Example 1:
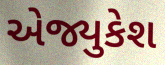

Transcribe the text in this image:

એજ્યુકેશ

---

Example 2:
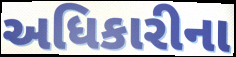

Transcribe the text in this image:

અધિકારીના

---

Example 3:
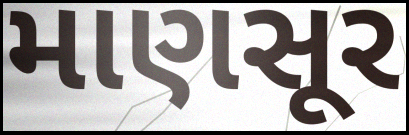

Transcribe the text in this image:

માણસૂર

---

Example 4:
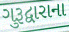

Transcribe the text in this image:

ગુરૂદ્વારાના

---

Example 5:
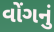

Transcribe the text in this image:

વોંગનું